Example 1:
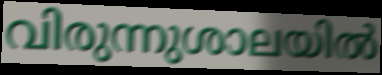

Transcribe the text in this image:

വിരുന്നുശാലയിൽ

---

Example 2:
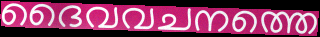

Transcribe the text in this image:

ദൈവവചനത്തെ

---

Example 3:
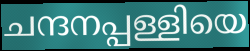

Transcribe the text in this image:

ചന്ദനപ്പള്ളിയെ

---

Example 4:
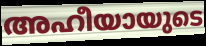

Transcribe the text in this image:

അഹീയായുടെ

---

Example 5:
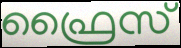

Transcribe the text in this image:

ഫ്രൈസ്